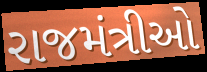
રાજમંત્રીઓ